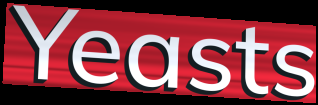
Yeasts